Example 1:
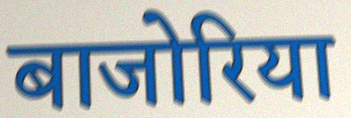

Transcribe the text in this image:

बाजोरिया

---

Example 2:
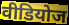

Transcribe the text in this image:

वीडियोज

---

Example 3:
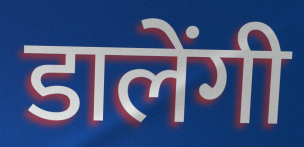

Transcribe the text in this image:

डालेंगी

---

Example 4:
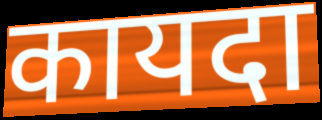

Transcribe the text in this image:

कायदा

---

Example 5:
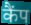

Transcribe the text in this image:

कैंप